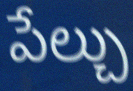
పేల్చు